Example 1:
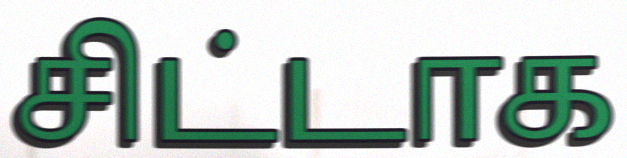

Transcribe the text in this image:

சிட்டாக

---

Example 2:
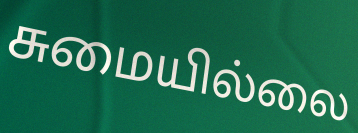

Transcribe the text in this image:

சுமையில்லை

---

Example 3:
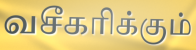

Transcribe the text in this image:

வசீகரிக்கும்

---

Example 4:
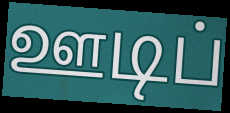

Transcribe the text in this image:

ஊடிப்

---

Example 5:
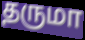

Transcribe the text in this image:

தருமா